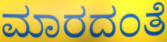
ಮಾರದಂತೆ